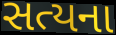
સત્યના